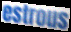
estrous